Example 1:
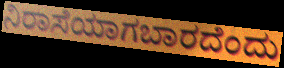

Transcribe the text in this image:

ನಿರಾಸೆಯಾಗಬಾರದೆಂದು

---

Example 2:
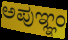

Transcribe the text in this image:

ಅಪುಞ್ಞಂ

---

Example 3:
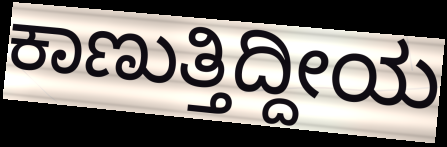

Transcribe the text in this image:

ಕಾಣುತ್ತಿದ್ದೀಯ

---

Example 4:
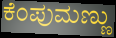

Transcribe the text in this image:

ಕೆಂಪುಮಣ್ಣು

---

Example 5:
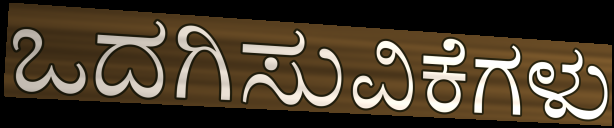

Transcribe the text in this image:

ಒದಗಿಸುವಿಕೆಗಳು